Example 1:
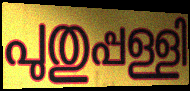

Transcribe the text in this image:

പുതുപ്പള്ളി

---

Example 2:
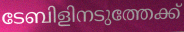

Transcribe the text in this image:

ടേബിളിനടുത്തേക്ക്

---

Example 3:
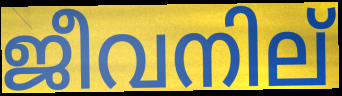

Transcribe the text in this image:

ജീവനില്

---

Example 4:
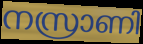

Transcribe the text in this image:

നസ്രാണി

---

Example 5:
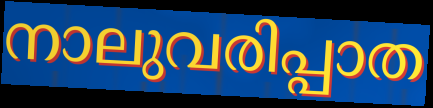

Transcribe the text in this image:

നാലുവരിപ്പാത